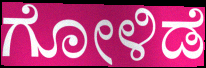
ಗೋಳಿಡೆ